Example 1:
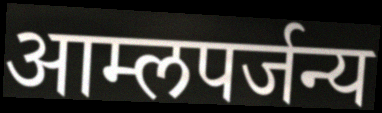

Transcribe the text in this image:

आम्लपर्जन्य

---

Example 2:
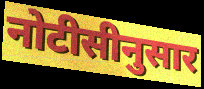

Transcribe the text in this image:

नोटीसीनुसार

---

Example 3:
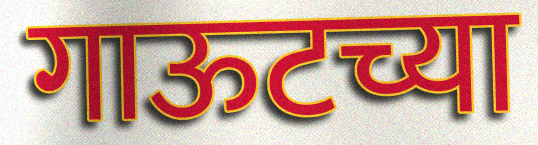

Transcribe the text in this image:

गाऊटच्या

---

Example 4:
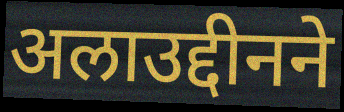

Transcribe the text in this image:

अलाउद्दीनने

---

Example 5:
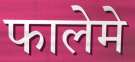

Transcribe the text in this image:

फालेमे